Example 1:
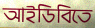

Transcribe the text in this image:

আইডিবিতে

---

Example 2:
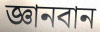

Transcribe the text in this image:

জ্ঞানবান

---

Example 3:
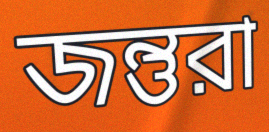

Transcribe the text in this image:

জন্তুরা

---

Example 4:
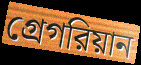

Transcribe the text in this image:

গ্রেগরিয়ান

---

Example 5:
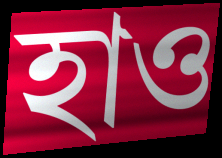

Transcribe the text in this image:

হাও